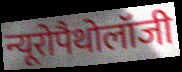
न्यूरोपैथोलॉजी